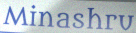
Minashru